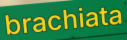
brachiata